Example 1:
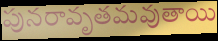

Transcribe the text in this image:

పునరావృతమవుతాయి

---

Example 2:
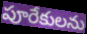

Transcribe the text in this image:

పూరేకులను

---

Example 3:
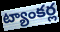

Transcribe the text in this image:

ట్యాంకర్ల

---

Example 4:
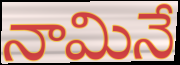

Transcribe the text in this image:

నామినే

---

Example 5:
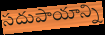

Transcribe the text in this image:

సదుపాయాన్ని